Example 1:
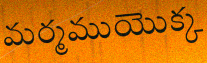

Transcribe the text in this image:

మర్మముయొక్క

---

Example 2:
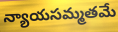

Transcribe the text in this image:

న్యాయసమ్మతమే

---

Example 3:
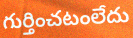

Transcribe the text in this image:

గుర్తించటంలేదు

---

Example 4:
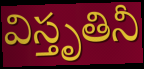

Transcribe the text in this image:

విస్తృతినీ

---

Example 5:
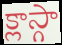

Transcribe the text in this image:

క్లాస్గా